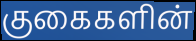
குகைகளின்